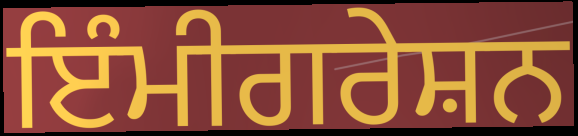
ਇੰਮੀਗਰੇਸ਼ਨ